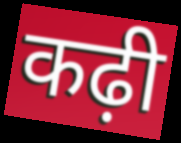
कढ़ी